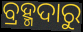
ବ୍ରହ୍ମଦାରୁ